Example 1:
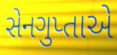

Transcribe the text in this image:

સેનગુપ્તાએ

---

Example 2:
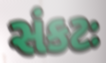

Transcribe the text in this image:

સંકટઃ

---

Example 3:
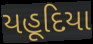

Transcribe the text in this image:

યહૂદિયા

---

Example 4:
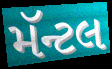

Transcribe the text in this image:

મૅન્ટલ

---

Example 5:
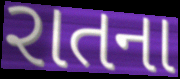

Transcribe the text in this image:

રાતના